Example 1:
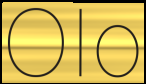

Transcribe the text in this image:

Olo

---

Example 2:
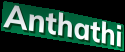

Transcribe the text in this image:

Anthathi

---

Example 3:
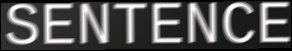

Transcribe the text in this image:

SENTENCE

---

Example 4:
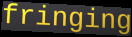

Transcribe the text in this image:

fringing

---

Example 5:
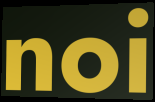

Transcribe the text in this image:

noi